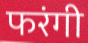
फरंगी